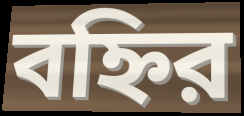
বহ্নির